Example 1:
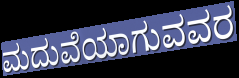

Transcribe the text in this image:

ಮದುವೆಯಾಗುವವರ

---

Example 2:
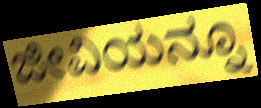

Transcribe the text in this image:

ಜೀವಿಯನ್ನೂ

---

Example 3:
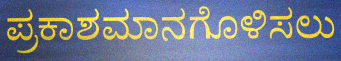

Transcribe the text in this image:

ಪ್ರಕಾಶಮಾನಗೊಳಿಸಲು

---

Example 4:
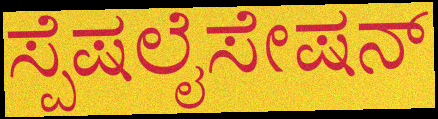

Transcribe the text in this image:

ಸ್ಪೆಷಲೈಸೇಷನ್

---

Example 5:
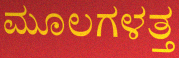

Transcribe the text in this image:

ಮೂಲಗಳತ್ತ